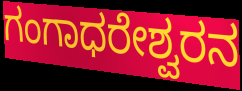
ಗಂಗಾಧರೇಶ್ವರನ